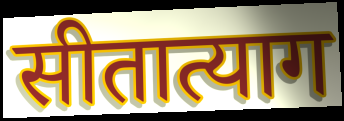
सीतात्याग